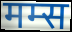
मम्स